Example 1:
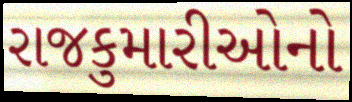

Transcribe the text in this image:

રાજકુમારીઓનો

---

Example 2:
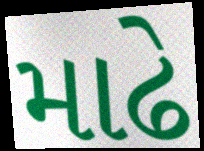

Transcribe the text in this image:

માઢે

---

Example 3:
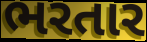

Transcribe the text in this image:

ભરતાર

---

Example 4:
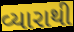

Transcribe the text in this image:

વ્યારાથી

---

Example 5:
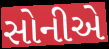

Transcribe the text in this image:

સોનીએ